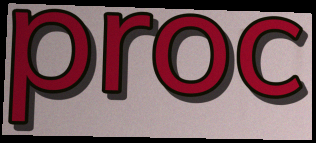
proc